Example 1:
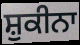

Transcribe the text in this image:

ਸ਼ੁਕੀਨਾ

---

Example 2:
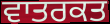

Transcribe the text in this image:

ਵਾਤਰਕਤ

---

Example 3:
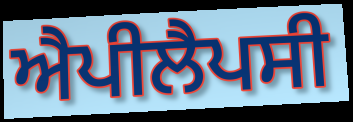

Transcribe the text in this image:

ਐਪੀਲੈਪਸੀ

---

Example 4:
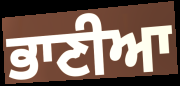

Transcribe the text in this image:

ਭਾਣੀਆ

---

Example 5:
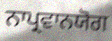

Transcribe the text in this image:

ਨਾਪ੍ਰਵਾਨਯੋਗ